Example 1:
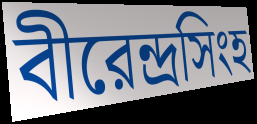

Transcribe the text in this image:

বীরেন্দ্রসিংহ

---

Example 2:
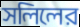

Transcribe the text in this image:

সলিলের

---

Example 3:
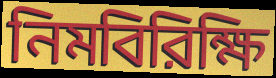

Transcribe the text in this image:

নিমবিরিক্ষি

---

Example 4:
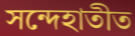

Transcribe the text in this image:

সন্দেহাতীত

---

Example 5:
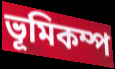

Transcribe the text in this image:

ভূমিকম্প